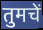
तुमचें